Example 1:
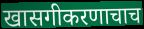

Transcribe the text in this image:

खासगीकरणाचाच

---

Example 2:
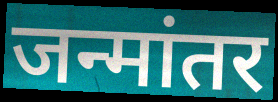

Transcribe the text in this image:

जन्मांतर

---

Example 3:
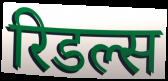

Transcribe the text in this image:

रिडल्स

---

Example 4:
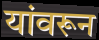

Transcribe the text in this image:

यांवरून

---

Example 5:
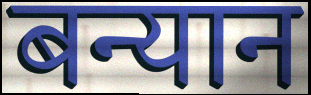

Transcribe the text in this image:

बन्यान